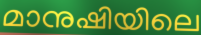
മാനുഷിയിലെ